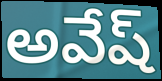
అవేష్